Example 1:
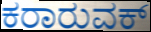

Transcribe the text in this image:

ಕರಾರುವಕ್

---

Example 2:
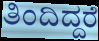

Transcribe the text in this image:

ತಿಂದಿದ್ದರೆ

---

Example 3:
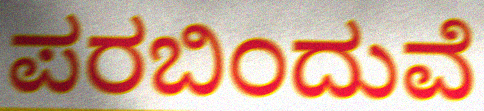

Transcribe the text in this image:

ಪರಬಿಂದುವೆ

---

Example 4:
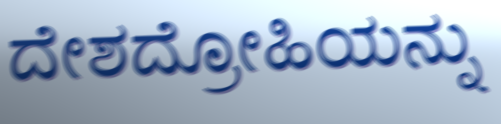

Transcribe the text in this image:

ದೇಶದ್ರೋಹಿಯನ್ನು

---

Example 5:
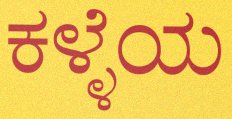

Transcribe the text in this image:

ಕಳ್ಳೆಯ